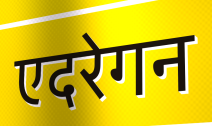
एदरेगन